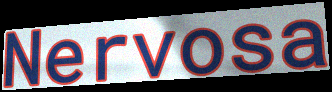
Nervosa